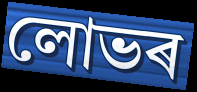
লোভৰ